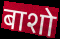
बाशो